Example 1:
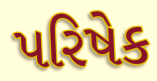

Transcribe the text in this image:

પરિષેક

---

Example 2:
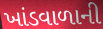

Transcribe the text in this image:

ખાંડવાળાની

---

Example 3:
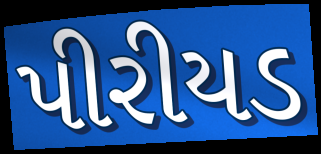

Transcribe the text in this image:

પીરીયડ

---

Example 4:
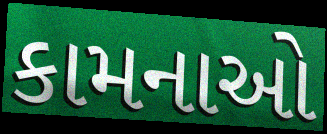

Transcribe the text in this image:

કામનાઓ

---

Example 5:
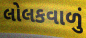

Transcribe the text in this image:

લોલકવાળું